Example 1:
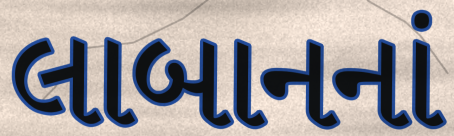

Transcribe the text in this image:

લાબાનનાં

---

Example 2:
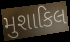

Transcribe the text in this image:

મુશાકિલ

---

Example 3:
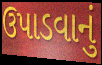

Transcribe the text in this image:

ઉપાડવાનું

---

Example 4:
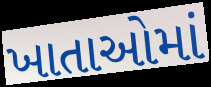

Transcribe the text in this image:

ખાતાઓમાં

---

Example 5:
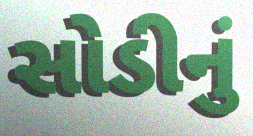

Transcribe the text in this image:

સોડીનું